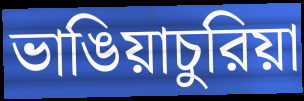
ভাঙিয়াচুরিয়া